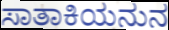
ಸಾತಾಕಿಯನುನ